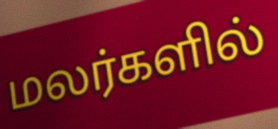
மலர்களில்